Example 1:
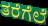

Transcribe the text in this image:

ತರೆಗೆಲೆ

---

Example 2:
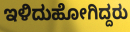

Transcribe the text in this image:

ಇಳಿದುಹೋಗಿದ್ದರು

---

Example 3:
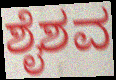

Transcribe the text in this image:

ಶೈಶವ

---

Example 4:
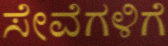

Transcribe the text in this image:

ಸೇವೆಗಳಿಗೆ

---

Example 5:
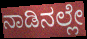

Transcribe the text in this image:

ನಾಡಿನಲ್ಲೇ